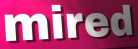
mired